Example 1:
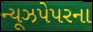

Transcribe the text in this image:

ન્યૂઝપેપરના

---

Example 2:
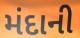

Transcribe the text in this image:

મંદાની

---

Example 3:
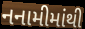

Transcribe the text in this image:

નનામીમાંથી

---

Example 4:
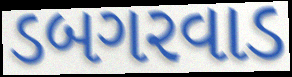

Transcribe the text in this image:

ડબગરવાડ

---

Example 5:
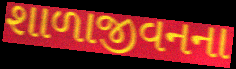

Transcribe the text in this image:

શાળાજીવનના